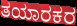
ತಯಾರಕರ